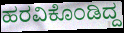
ಹರವಿಕೊಂಡಿದ್ದ